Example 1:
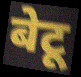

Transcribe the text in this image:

बेटू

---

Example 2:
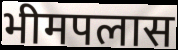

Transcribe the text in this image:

भीमपलास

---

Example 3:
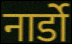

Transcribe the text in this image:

नार्डो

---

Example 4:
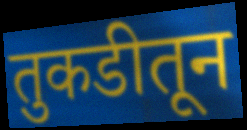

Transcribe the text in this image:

तुकडीतून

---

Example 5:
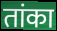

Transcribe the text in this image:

तांका